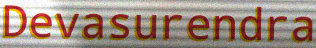
Devasurendra